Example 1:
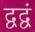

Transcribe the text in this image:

द्वद्वं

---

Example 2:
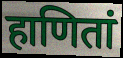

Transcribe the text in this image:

हाणितां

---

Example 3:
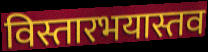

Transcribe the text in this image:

विस्तारभयास्तव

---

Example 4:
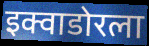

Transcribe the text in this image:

इक्वाडोरला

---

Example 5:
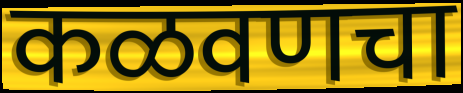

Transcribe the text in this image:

कळवणचा